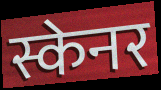
स्केनर